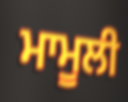
ਮਾਮੂਲੀ